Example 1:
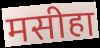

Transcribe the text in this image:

मसीहा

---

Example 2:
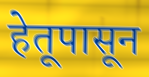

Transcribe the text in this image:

हेतूपासून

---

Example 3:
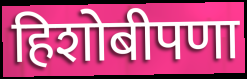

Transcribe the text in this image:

हिशोबीपणा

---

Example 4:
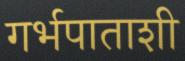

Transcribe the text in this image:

गर्भपाताशी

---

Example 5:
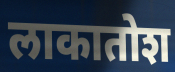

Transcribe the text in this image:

लाकातोश